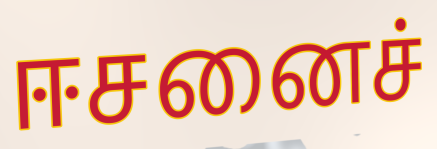
ஈசனைச்